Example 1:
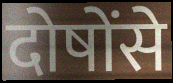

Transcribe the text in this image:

दोषोंसे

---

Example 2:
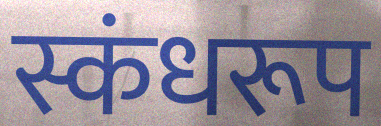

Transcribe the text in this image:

स्कंधरूप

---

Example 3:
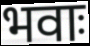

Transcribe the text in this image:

भवाः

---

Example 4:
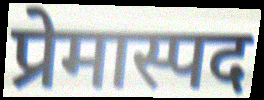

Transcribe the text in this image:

प्रेमास्पद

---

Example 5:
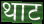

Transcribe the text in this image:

थाट